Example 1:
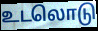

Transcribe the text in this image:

உடலொடு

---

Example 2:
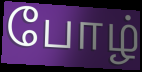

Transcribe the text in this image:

போழ்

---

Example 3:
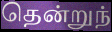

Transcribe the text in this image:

தென்றுந்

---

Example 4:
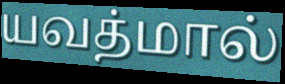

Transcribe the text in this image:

யவத்மால்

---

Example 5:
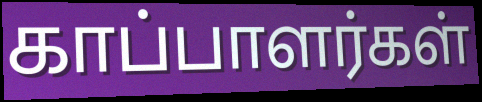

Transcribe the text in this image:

காப்பாளர்கள்